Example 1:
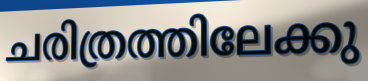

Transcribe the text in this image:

ചരിത്രത്തിലേക്കു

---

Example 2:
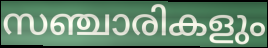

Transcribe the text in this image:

സഞ്ചാരികളും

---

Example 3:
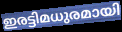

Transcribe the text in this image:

ഇരട്ടിമധുരമായി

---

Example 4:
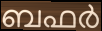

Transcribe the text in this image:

ബഫർ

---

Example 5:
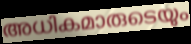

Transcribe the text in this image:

അധികമാരുടെയും